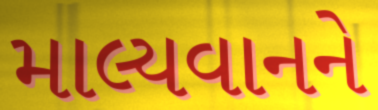
માલ્યવાનને